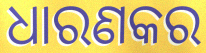
ଧାରଣକର